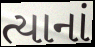
ત્યાનાં